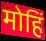
मोहिं